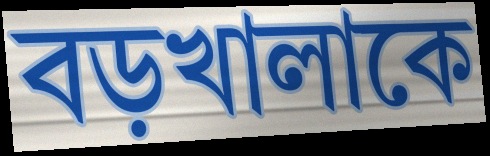
বড়খালাকে